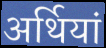
अर्थियां